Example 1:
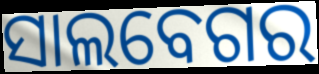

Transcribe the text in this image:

ସାଲବେଗର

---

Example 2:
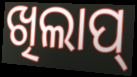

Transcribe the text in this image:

ଖିଲାପ୍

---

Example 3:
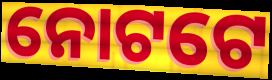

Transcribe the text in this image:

ନୋଟଟେ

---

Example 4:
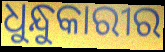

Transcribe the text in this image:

ଧୁନ୍ଧୁକାରୀର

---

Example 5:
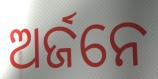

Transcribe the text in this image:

ଅର୍ଜନେ